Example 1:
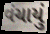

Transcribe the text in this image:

વંચાયું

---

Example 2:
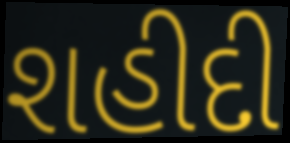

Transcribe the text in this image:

શહીદી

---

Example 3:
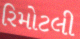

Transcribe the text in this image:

રિમોટલી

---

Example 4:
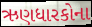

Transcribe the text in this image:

ઋણધારકોના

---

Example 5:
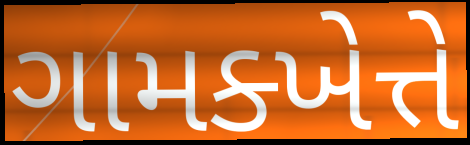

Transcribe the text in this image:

ગામક્ખેત્તે